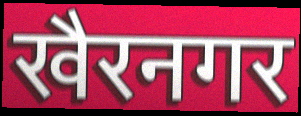
खैरनगर